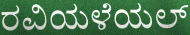
ರವಿಯಳೆಯಲ್